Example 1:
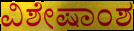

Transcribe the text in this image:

ವಿಶೇಷಾಂಶ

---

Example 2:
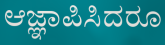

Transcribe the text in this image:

ಆಜ್ಞಾಪಿಸಿದರೂ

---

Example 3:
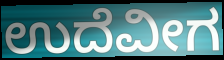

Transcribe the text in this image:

ಉದೆವೀಗ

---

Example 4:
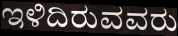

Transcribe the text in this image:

ಇಳಿದಿರುವವರು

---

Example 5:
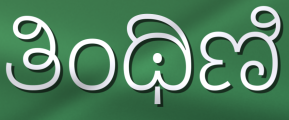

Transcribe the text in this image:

ತಿಂಥಿಣಿ